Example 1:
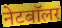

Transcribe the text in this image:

नेटबॉलर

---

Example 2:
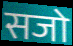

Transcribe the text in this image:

सजो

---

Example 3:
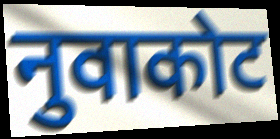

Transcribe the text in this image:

नुवाकोट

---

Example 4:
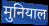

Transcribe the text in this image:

मुनियाल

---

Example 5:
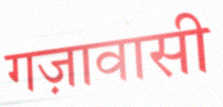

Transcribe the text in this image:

गज़ावासी